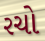
રચો